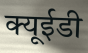
क्यूईडी